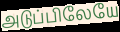
அடுப்பிலேயே